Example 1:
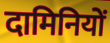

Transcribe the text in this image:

दामिनियों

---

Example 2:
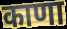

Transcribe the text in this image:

काणा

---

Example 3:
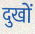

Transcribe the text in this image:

दुखों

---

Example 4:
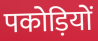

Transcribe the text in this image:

पकोड़ियों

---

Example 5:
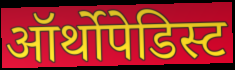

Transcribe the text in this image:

ऑर्थोपेडिस्ट